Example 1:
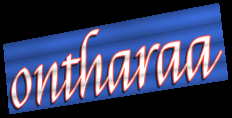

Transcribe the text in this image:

ontharaa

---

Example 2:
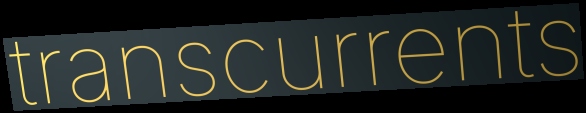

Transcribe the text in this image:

transcurrents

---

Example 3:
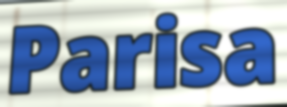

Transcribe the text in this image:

Parisa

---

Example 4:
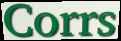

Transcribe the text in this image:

Corrs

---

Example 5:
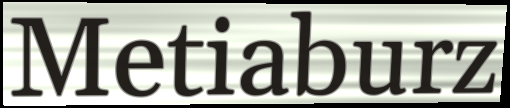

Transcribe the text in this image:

Metiaburz